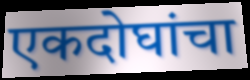
एकदोघांचा